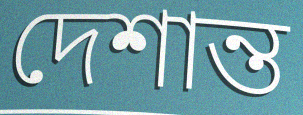
দেশান্ত